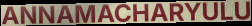
ANNAMACHARYULU